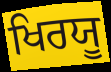
ਖਿਰਯੂ